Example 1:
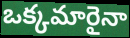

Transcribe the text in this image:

ఒక్కమారైనా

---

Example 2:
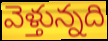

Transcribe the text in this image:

వెళ్తున్నది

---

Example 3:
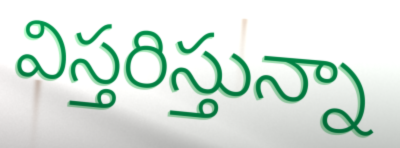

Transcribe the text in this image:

విస్తరిస్తున్నా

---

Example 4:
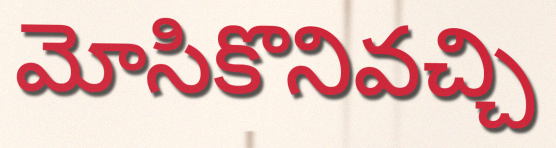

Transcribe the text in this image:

మోసికొనివచ్చి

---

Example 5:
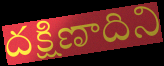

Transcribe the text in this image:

దక్షిణాదిని